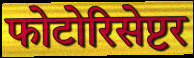
फोटोरिसेप्टर